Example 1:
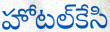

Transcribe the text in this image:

హోటల్‌కేసి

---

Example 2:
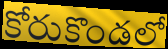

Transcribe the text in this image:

కోరుకొండలో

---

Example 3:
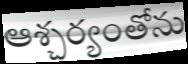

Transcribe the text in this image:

ఆశ్చర్యంతోను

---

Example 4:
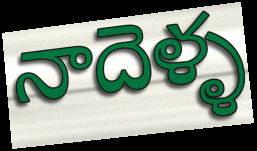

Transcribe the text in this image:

నాదెళ్ళ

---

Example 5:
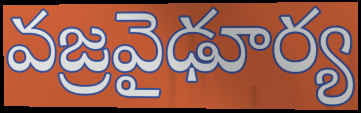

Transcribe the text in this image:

వజ్రవైఢూర్య